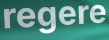
regere